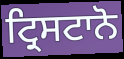
ਟ੍ਰਿਸਟਾਨੋ